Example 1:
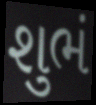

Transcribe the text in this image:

શુભં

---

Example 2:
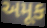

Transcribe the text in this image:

અમૂક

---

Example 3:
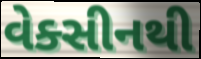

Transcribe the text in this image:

વેક્સીનથી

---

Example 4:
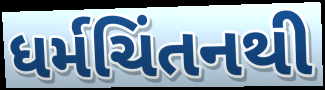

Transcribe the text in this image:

ધર્મચિંતનથી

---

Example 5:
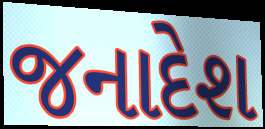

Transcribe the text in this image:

જનાદેશ